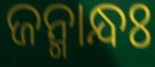
ଜନ୍ମାନ୍ଧଃ